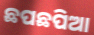
ଛପଛପିଆ